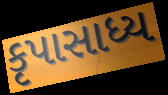
કૃપાસાધ્ય